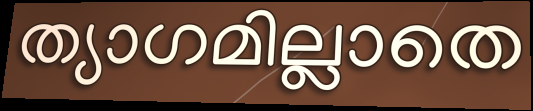
ത്യാഗമില്ലാതെ